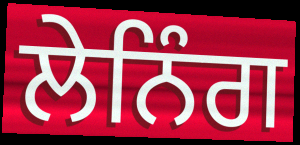
ਲੇਨਿੰਗ